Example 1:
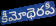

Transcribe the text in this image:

కీమోథెరపీ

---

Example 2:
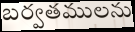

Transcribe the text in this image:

బర్వతములను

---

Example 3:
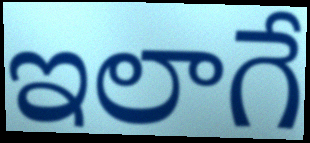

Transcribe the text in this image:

ఇలాగే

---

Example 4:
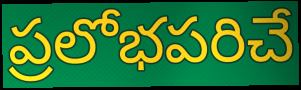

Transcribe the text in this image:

ప్రలోభపరిచే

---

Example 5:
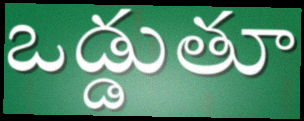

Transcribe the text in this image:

ఒడ్డుతూ